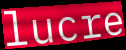
lucre